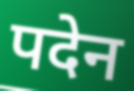
पदेन